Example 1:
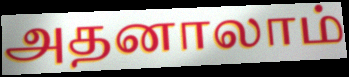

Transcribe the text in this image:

அதனாலாம்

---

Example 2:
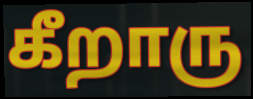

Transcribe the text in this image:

கீறாரு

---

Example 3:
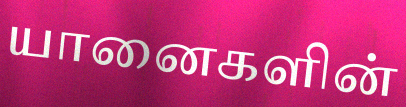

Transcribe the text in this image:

யானைகளின்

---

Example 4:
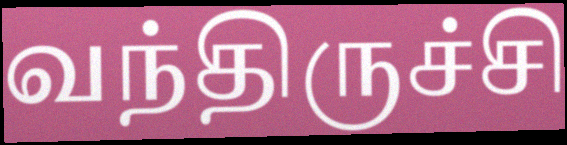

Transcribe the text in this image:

வந்திருச்சி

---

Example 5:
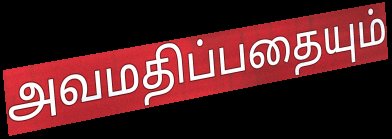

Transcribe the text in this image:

அவமதிப்பதையும்